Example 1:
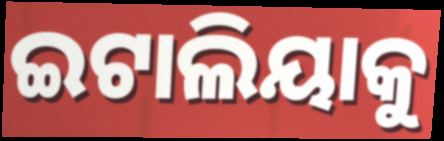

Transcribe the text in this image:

ଇଟାଲିୟାକୁ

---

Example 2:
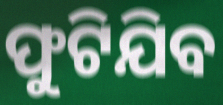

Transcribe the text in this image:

ଫୁଟିଯିବ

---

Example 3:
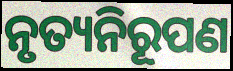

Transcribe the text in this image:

ନୃତ୍ୟନିରୂପଣ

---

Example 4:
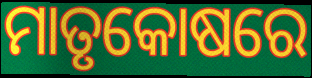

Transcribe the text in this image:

ମାତୃକୋଷରେ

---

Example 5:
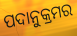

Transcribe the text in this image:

ପଦାନୁକ୍ରମର